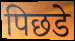
पिछडे